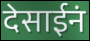
देसाईनं